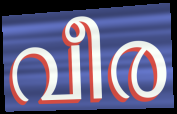
വീര